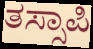
ತಸ್ಸಾಪಿ